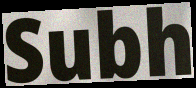
Subh